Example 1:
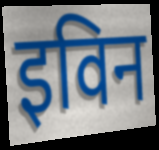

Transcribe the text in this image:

इविन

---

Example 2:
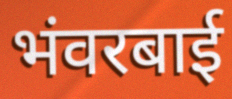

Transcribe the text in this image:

भंवरबाई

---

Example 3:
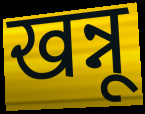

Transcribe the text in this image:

खन्नू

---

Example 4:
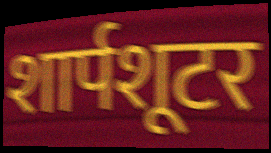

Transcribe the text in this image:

शार्पशूटर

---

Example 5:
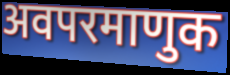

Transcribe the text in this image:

अवपरमाणुक